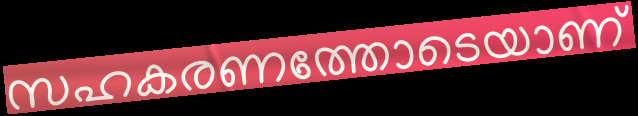
സഹകരണത്തോടെയാണ്